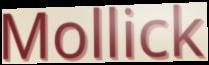
Mollick